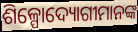
ଶିଳ୍ପୋଦ୍ୟୋଗୀମାନଙ୍କ